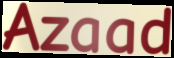
Azaad